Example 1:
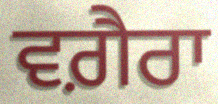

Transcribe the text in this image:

ਵਗ਼ੈਰਾ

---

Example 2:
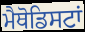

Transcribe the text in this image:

ਮੈਥੋਡਿਸਟਾਂ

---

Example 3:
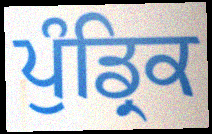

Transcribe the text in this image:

ਪੁੰਡ੍ਰਿਕ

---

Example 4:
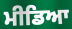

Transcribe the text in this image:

ਮੀਡਿਆ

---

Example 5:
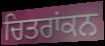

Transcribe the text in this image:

ਚਿਤਰਾਂਕਨ